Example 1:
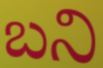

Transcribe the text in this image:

బని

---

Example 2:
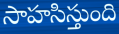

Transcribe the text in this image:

సాహసిస్తుంది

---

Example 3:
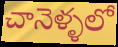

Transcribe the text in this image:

చానెళ్ళలో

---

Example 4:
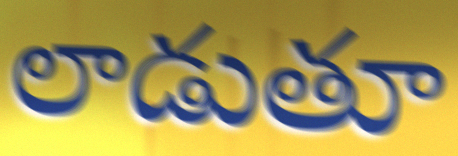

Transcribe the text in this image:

లాడుతూ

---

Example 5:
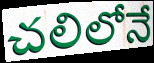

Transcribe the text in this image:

చలిలోనే